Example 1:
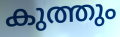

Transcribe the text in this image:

കുത്തും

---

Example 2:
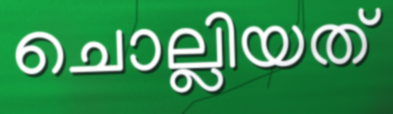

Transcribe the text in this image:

ചൊല്ലിയത്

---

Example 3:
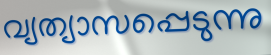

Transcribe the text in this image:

വ്യത്യാസപ്പെടുന്നു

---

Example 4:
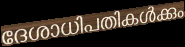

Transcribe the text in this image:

ദേശാധിപതികൾക്കും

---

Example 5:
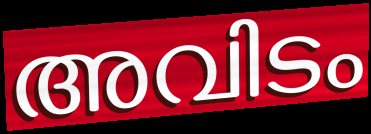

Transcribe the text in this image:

അവിടം